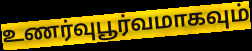
உணர்வுபூர்வமாகவும்